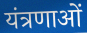
यंत्रणाओं